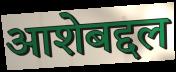
आशेबद्दल